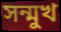
সন্মুখ